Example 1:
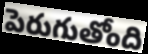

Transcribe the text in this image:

పెరుగుతోంది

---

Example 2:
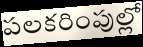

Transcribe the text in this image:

పలకరింపుల్లో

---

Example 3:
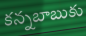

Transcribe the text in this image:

కన్నబాబుకు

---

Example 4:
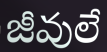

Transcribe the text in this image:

జీవులే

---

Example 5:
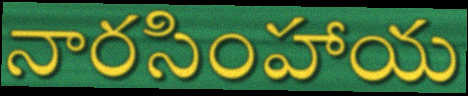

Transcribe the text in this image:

నారసింహాయ